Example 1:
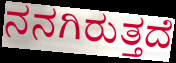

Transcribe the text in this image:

ನನಗಿರುತ್ತದೆ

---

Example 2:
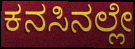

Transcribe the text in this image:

ಕನಸಿನಲ್ಲೇ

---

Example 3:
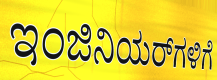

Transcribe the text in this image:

ಇಂಜಿನಿಯರ್‌ಗಳಿಗೆ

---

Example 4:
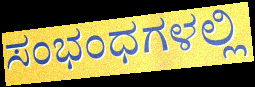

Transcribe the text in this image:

ಸಂಭಂಧಗಳಲ್ಲಿ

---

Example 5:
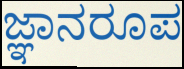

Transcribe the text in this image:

ಜ್ಞಾನರೂಪ